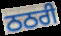
ਠਠਰੀ